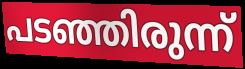
പടഞ്ഞിരുന്ന്